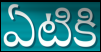
ఏటికి